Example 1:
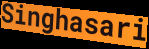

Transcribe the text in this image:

Singhasari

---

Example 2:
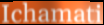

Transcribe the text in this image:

Ichamati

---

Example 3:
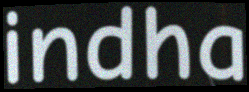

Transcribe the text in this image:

indha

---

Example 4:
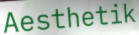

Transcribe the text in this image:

Aesthetik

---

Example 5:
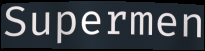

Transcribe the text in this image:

Supermen